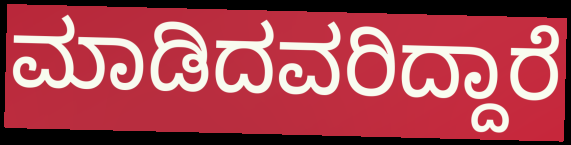
ಮಾಡಿದವರಿದ್ದಾರೆ